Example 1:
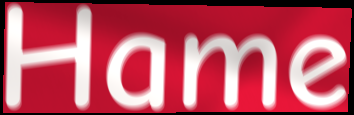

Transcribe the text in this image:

Hame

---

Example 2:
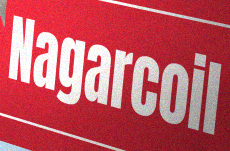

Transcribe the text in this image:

Nagarcoil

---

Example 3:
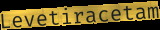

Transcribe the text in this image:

Levetiracetam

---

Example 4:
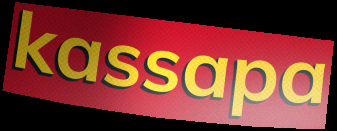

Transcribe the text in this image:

kassapa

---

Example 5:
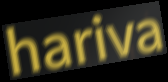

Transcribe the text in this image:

hariva